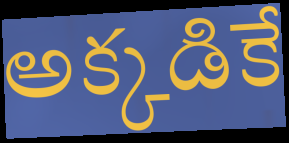
అక్కడికే